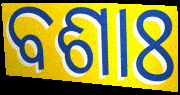
ବଶାଃ